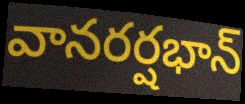
వానరర్షభాన్